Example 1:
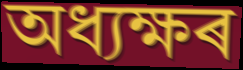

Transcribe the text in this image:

অধ্যক্ষৰ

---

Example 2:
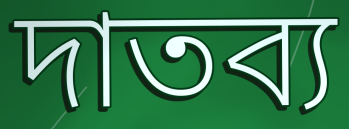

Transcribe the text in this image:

দাতব্য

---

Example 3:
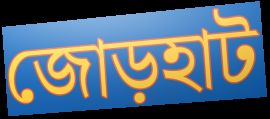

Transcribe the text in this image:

জোড়হাট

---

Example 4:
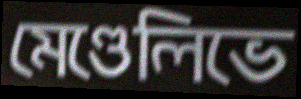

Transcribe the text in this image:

মেণ্ডেলিভে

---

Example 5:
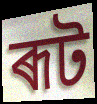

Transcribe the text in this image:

ৰূট